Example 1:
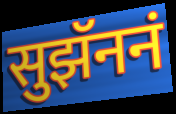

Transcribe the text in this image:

सुझॅननं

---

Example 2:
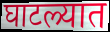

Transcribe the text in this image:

घाटल्यात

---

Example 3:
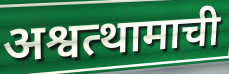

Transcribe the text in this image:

अश्वत्थामाची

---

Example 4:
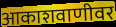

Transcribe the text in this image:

आकाशवाणीवर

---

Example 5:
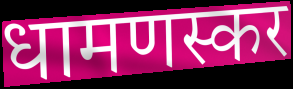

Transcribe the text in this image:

धामणस्कर